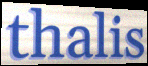
thalis